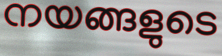
നയങ്ങളുടെ